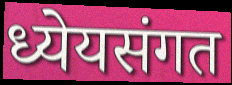
ध्येयसंगत